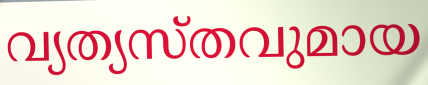
വ്യത്യസ്തവുമായ